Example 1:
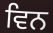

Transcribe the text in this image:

ਵਿਨ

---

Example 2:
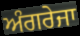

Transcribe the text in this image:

ਅੰਗਰੇਜਾ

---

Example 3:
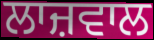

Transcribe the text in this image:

ਲਾਜ਼ਵਾਲ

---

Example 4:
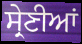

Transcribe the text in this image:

ਸ੍ਰੇਣੀਆਂ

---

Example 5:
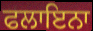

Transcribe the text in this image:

ਫਲਾਇਨਾ